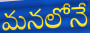
మనలోనే